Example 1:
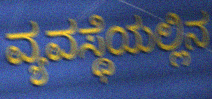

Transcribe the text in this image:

ವ್ಯವಸ್ಥೆಯಲ್ಲಿನ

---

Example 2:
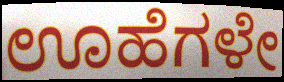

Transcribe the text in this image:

ಊಹೆಗಳೇ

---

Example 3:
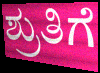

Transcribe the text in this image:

ಶ್ರುತಿಗೆ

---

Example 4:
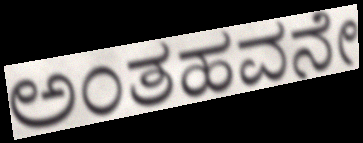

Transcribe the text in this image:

ಅಂತಹವನೇ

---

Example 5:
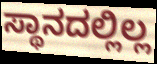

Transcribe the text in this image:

ಸ್ಥಾನದಲ್ಲಿಲ್ಲ